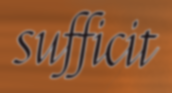
sufficit